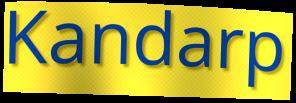
Kandarp